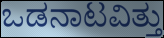
ಒಡನಾಟವಿತ್ತು